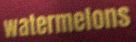
watermelons